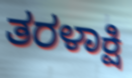
ತರಳಾಕ್ಷಿ